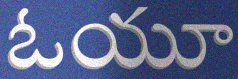
ఓయూ